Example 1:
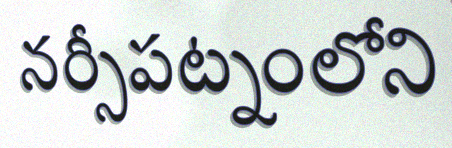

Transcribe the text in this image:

నర్సీపట్నంలోని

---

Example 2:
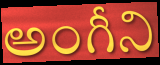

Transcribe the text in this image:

అంగీని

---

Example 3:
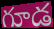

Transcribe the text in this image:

గూడ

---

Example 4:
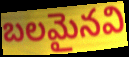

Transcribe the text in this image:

బలమైనవి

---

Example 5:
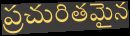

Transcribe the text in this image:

ప్రచురితమైన